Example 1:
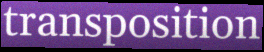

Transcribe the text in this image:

transposition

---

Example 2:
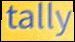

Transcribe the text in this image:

tally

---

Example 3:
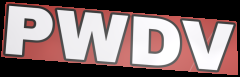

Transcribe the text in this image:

PWDV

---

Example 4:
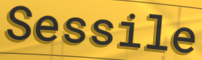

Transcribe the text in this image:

Sessile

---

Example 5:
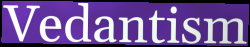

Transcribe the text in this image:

Vedantism